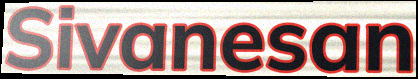
Sivanesan